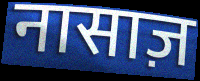
नासाज़